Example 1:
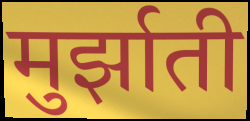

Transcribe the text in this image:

मुर्झाती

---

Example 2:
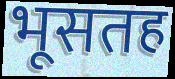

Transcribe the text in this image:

भूसतह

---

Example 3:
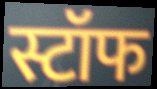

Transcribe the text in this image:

स्टॉफ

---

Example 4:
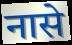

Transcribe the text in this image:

नासे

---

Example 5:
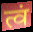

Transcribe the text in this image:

त्वं